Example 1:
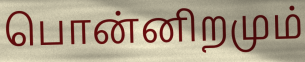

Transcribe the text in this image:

பொன்னிறமும்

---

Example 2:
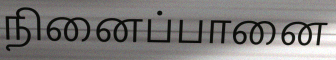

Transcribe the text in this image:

நினைப்பானை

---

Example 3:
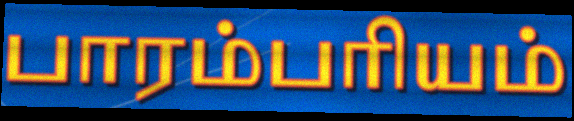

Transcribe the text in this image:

பாரம்பரியம்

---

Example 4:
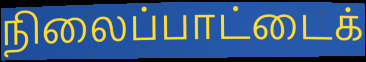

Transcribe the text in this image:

நிலைப்பாட்டைக்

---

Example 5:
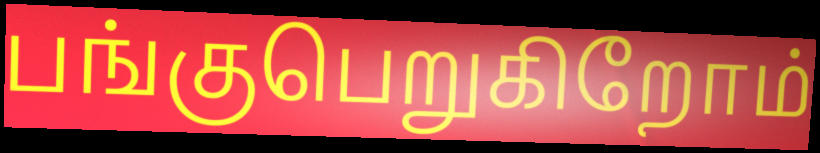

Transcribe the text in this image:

பங்குபெறுகிறோம்